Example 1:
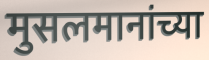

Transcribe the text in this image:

मुसलमानांच्या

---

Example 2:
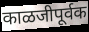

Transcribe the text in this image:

काळजीपूर्वक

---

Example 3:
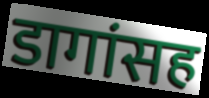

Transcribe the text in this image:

डागांसह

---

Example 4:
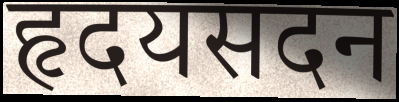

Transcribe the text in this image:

हृदयसदन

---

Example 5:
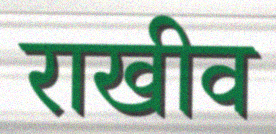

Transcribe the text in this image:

राखीव